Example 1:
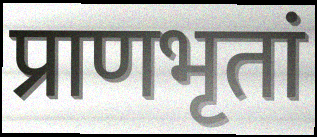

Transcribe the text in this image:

प्राणभृतां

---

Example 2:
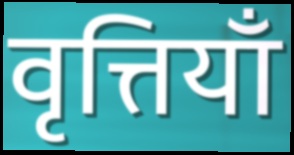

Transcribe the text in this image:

वृत्तियाँ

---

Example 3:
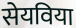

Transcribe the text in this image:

सेयविया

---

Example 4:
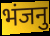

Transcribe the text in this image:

भंजनु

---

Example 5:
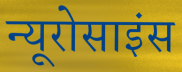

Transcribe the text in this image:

न्यूरोसाइंस